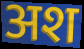
अश